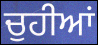
ਚੁਹੀਆਂ